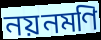
নয়নমণি